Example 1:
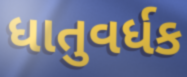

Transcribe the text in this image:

ધાતુવર્ધક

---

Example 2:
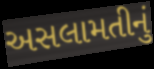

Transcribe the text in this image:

અસલામતીનું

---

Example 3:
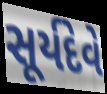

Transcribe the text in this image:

સૂર્યદેવે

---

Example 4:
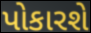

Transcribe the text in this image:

પોકારશે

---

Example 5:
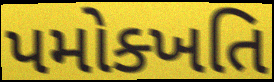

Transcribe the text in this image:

પમોક્ખતિ